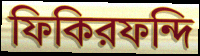
ফিকিরফন্দি